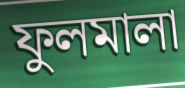
ফুলমালা